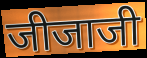
जीजाजी